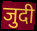
जुदी